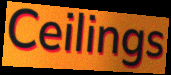
Ceilings